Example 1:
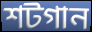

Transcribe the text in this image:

শটগান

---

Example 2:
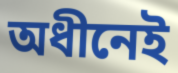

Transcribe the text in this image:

অধীনেই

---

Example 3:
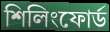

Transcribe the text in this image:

শিলিংফোর্ড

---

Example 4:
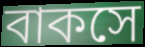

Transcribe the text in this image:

বাকসে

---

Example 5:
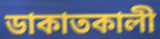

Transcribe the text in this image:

ডাকাতকালী